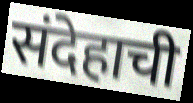
संदेहाची